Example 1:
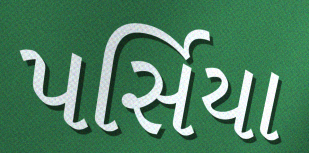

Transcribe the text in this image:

પર્સિયા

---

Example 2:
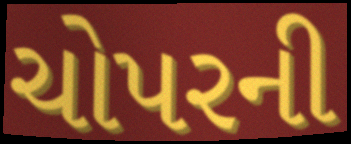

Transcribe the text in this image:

ચોપરની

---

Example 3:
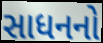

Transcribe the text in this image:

સાધનનો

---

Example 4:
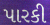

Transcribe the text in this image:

પારકી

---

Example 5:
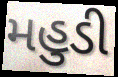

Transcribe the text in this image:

મહુડી